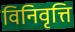
विनिवृत्ति